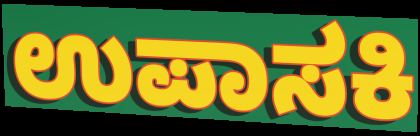
ಉಪಾಸಕಿ